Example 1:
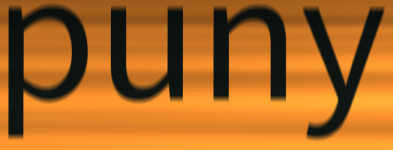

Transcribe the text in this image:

puny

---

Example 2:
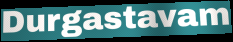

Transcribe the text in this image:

Durgastavam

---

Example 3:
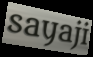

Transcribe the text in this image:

sayaji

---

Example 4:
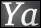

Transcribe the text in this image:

Ya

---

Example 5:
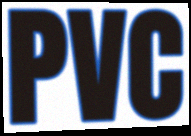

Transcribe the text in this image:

PVC